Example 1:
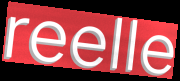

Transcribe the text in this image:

reelle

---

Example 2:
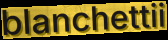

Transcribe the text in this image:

blanchettii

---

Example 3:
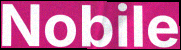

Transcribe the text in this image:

Nobile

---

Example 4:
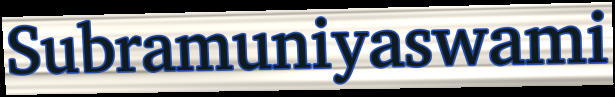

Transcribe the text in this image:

Subramuniyaswami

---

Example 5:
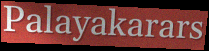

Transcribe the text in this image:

Palayakarars